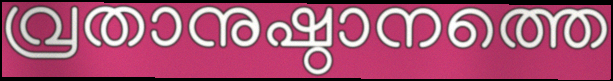
വ്രതാനുഷ്ഠാനത്തെ